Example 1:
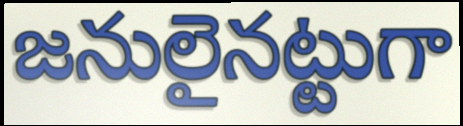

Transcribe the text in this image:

జనులైనట్టుగా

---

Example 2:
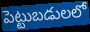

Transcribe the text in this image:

పెట్టుబడులలో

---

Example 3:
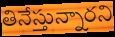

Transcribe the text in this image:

తినేస్తున్నారని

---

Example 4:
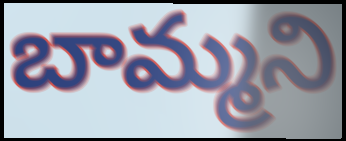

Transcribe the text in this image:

బామ్మని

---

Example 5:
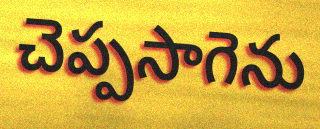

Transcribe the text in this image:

చెప్పసాగెను